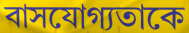
বাসযোগ্যতাকে